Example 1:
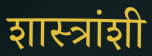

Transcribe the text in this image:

शास्त्रांशी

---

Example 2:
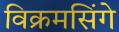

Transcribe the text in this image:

विक्रमसिंगे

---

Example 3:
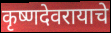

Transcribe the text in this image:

कृष्णदेवरायाचे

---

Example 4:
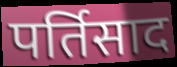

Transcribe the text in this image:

पर्तिसाद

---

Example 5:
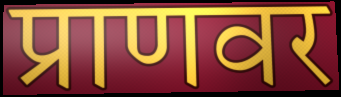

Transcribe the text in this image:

प्राणवर